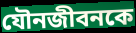
যৌনজীবনকে